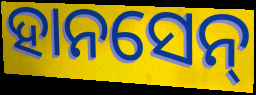
ହାନସେନ୍